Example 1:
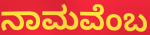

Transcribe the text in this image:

ನಾಮವೆಂಬ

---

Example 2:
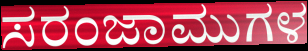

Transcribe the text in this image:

ಸರಂಜಾಮುಗಳ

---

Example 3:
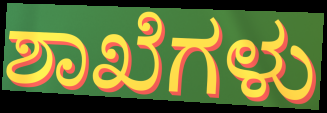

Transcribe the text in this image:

ಶಾಖೆಗಳು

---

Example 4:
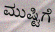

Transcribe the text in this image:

ಮುಷ್ಟಿಗೆ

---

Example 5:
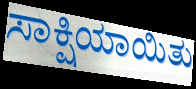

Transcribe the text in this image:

ಸಾಕ್ಷಿಯಾಯಿತು